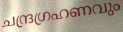
ചന്ദ്രഗ്രഹണവും